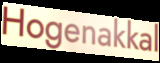
Hogenakkal